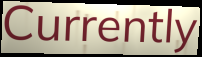
Currently